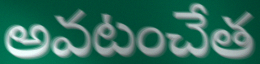
అవటంచేత